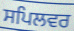
ਸਪਿਲਵਰ